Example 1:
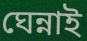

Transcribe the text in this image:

ঘেন্নাই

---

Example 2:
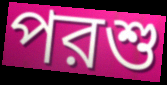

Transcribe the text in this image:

পরশু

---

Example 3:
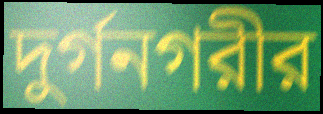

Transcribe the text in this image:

দুর্গনগরীর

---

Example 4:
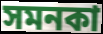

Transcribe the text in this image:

সমনকা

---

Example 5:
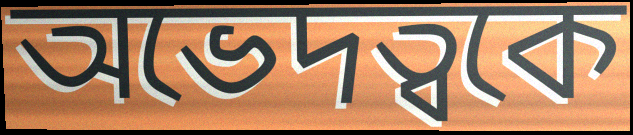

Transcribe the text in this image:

অভেদত্বকে